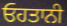
ਓਹਤਾਨੀ